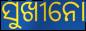
ସୁଖୀନୋ